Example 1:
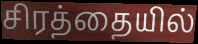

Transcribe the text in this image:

சிரத்தையில்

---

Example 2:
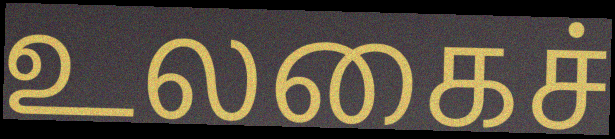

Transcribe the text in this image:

உலகைச்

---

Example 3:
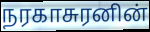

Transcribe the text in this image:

நரகாசுரனின்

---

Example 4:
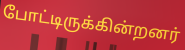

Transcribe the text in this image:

போட்டிருக்கின்றனர்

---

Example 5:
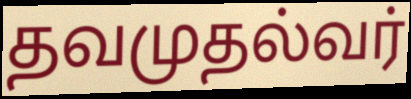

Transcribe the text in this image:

தவமுதல்வர்